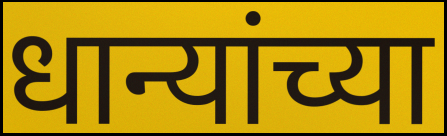
धान्यांच्या